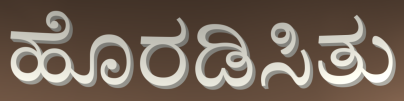
ಹೊರಡಿಸಿತು